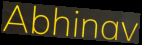
Abhinav